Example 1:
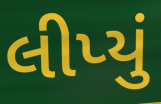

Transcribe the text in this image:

લીપ્યું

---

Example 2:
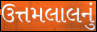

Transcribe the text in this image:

ઉત્તમલાલનું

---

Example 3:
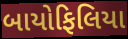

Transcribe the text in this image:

બાયોફિલિયા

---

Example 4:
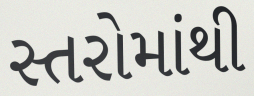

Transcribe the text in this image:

સ્તરોમાંથી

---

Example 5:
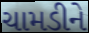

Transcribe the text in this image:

ચામડીને